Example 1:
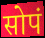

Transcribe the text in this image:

सोपं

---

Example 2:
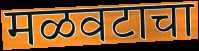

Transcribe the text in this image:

मळवटाचा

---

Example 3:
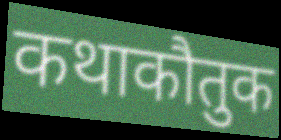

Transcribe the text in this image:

कथाकौतुक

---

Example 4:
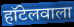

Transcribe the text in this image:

हॉटेलवाला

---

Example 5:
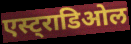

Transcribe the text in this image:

एस्ट्राडिओल